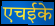
एचईके